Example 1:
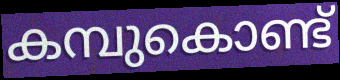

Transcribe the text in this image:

കമ്പുകൊണ്ട്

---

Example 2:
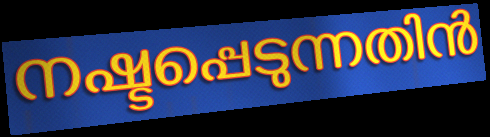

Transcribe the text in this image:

നഷ്ടപ്പെടുന്നതിൻ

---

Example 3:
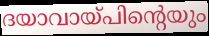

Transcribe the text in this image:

ദയാവായ്പിന്റെയും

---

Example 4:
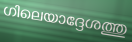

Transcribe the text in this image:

ഗിലെയാദ്ദേശത്തു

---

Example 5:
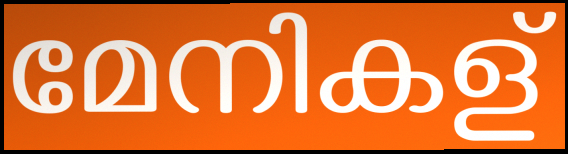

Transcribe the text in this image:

മേനികള്